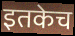
इतकेच